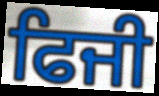
ਫਿਜੀ